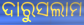
ଦାରୁସଲାମ